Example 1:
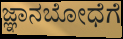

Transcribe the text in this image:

ಜ್ಞಾನಬೋಧೆಗೆ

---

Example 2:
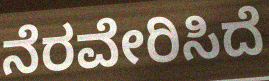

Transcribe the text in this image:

ನೆರವೇರಿಸಿದೆ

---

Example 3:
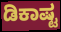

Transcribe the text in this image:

ಡಿಕಾಷ್ಟ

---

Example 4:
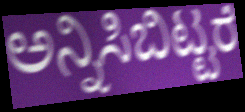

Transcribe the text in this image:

ಅನ್ನಿಸಿಬಿಟ್ಟರೆ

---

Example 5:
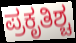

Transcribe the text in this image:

ಪ್ರಕೃತಿಶ್ಚ